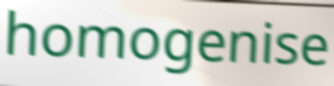
homogenise